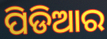
ପିଡିଆର